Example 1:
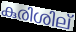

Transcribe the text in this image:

കുരിശില്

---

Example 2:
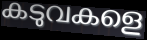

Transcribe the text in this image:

കടുവകളെ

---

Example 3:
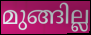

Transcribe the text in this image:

മുങ്ങില്ല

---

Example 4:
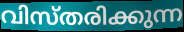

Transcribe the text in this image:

വിസ്തരിക്കുന്ന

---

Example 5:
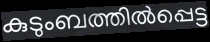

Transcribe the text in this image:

കുടുംബത്തിൽപ്പെട്ട